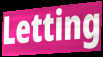
Letting